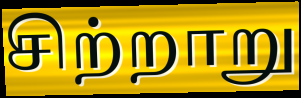
சிற்றாறு